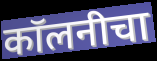
कॉलनीचा